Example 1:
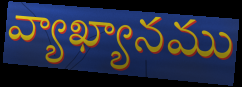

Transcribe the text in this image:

వ్యాఖ్యానము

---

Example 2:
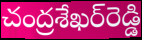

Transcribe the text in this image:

చంద్రశేఖర్‌రెడ్డి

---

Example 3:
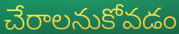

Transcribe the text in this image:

చేరాలనుకోవడం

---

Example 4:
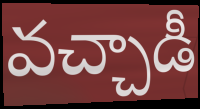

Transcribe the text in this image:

వచ్చాడీ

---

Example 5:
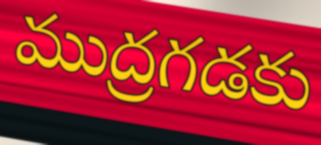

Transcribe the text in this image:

ముద్రగడకు